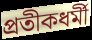
প্রতীকধর্মী